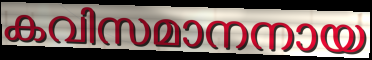
കവിസമാനനായ